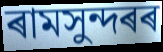
ৰামসুন্দৰৰ